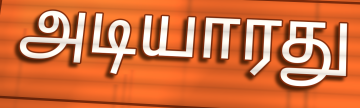
அடியாரது